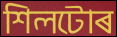
শিলটোৰ